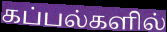
கப்பல்களில்